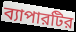
ব্যাপারটির